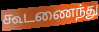
கூடணைந்து